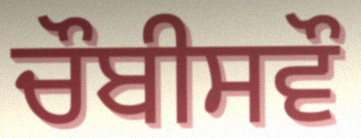
ਚੌਬੀਸਵੌ